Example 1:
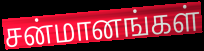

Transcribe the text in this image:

சன்மானங்கள்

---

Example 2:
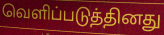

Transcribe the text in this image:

வெளிப்படுத்தினது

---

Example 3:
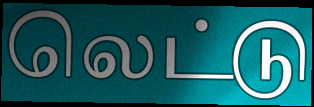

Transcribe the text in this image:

லெட்டு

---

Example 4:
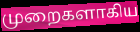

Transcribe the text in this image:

முறைகளாகிய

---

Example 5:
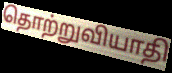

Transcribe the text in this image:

தொற்றுவியாதி